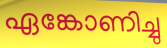
ഏങ്കോണിച്ചു